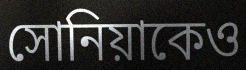
সোনিয়াকেও